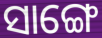
ସାଙ୍ଗେ